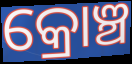
କ୍ରୋଞ୍ଚ